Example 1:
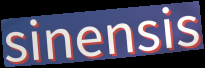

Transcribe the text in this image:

sinensis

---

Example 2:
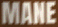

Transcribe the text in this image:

MANE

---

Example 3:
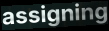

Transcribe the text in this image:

assigning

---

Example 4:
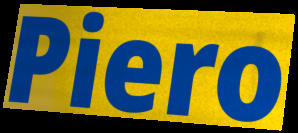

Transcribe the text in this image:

Piero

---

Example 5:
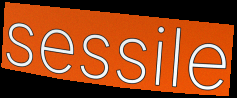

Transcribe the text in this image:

sessile